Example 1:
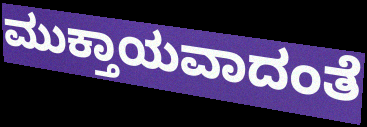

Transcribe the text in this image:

ಮುಕ್ತಾಯವಾದಂತೆ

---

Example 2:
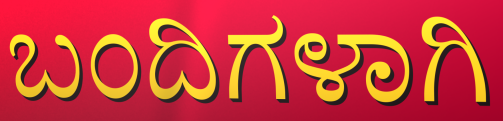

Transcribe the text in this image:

ಬಂದಿಗಳಾಗಿ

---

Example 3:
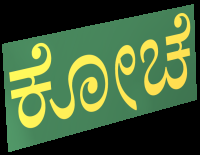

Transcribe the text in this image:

ಕೋಚೆ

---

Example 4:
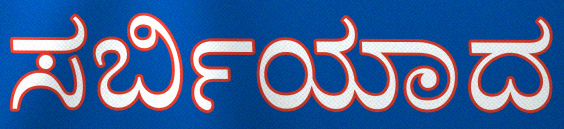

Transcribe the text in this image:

ಸರ್ಬಿಯಾದ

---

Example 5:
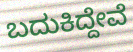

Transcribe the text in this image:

ಬದುಕಿದ್ದೇವೆ